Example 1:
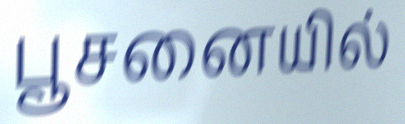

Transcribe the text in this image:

பூசனையில்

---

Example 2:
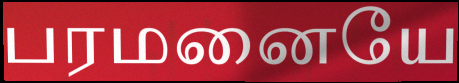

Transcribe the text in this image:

பரமனையே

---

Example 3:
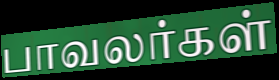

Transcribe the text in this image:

பாவலர்கள்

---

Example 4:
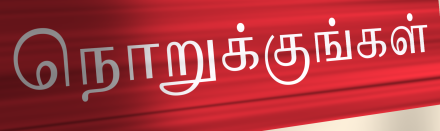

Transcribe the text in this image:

நொறுக்குங்கள்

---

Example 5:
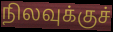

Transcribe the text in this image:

நிலவுக்குச்